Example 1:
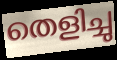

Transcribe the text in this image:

തെളിച്ചു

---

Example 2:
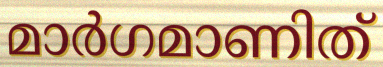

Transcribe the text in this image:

മാർഗമാണിത്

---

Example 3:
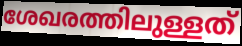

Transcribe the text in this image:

ശേഖരത്തിലുള്ളത്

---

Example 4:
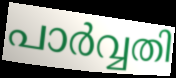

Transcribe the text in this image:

പാർവ്വതി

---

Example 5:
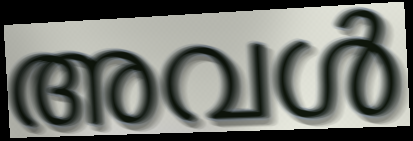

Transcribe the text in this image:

അവൾ